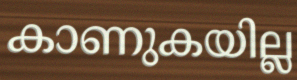
കാണുകയില്ല